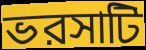
ভরসাটি